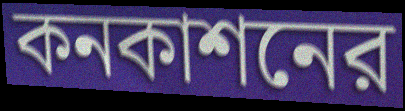
কনকাশনের